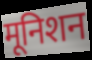
मूनिशन